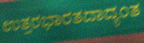
ಉತ್ತರಭಾರತದಾದ್ಯಂತ